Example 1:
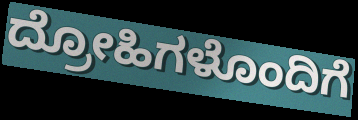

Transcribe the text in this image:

ದ್ರೋಹಿಗಳೊಂದಿಗೆ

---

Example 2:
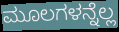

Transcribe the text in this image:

ಮೂಲಗಳನ್ನೆಲ್ಲ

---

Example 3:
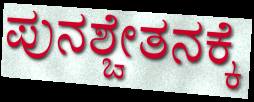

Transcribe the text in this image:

ಪುನಶ್ಚೇತನಕ್ಕೆ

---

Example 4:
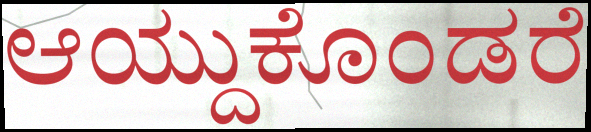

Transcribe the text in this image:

ಆಯ್ದುಕೊಂಡರೆ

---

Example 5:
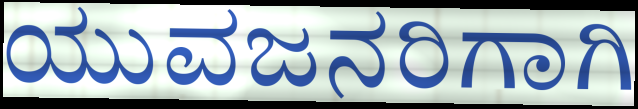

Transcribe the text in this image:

ಯುವಜನರಿಗಾಗಿ